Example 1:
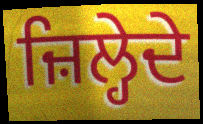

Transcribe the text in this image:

ਜ਼ਿਲ੍ਹੇਦੇ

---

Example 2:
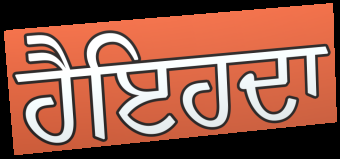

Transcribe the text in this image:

ਹੈਇਹਦਾ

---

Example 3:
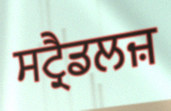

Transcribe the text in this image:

ਸਟ੍ਰੈਡਲਜ਼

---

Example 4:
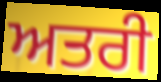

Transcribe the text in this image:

ਅਤਰੀ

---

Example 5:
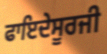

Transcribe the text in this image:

ਫਾਇਦੇਸੂਰਜੀ